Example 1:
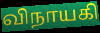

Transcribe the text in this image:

விநாயகி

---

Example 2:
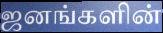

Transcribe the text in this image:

ஜனங்களின்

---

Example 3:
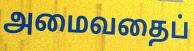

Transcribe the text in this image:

அமைவதைப்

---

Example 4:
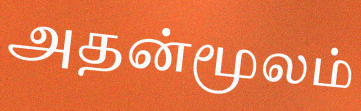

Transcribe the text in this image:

அதன்மூலம்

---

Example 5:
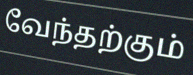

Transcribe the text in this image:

வேந்தற்கும்